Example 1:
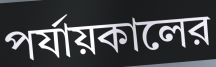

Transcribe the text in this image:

পর্যায়কালের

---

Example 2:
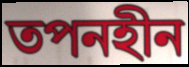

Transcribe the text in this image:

তপনহীন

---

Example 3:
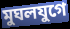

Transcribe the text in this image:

মুঘলযুগে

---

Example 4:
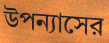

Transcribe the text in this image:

উপন্যাসের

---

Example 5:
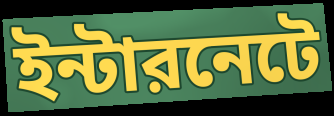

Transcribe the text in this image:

ইন্টারনেটে